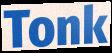
Tonk